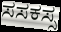
ಸಸಕಸ್ಸ